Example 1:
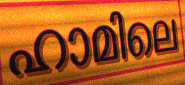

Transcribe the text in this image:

ഹാമിലെ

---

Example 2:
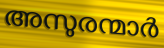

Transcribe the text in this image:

അസുരന്മാർ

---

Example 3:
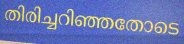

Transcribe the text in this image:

തിരിച്ചറിഞ്ഞതോടെ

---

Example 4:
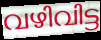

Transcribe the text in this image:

വഴിവിട്ട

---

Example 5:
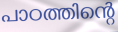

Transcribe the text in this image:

പാഠത്തിന്റെ